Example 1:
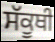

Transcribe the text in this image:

ਸੱਕੂਥੀ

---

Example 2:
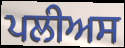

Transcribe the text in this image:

ਪਲੀਅਸ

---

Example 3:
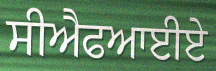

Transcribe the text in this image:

ਸੀਐਫਆਈਏ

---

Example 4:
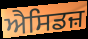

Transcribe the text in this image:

ਐਸਿਡਜ਼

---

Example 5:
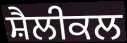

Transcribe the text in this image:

ਸ਼ੈਲੀਕਲ